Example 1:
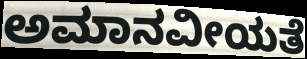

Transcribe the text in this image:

ಅಮಾನವೀಯತೆ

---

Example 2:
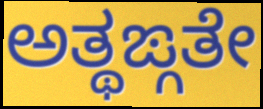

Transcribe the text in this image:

ಅತ್ಥಙ್ಗತೇ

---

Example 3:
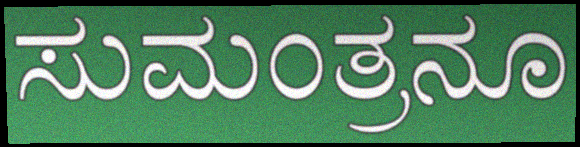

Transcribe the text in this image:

ಸುಮಂತ್ರನೂ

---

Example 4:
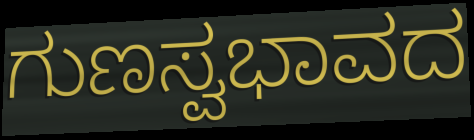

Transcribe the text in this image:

ಗುಣಸ್ವಭಾವದ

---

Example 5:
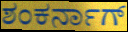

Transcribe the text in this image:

ಶಂಕರ್ನಾಗ್